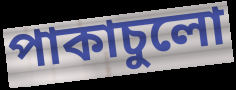
পাকাচুলো